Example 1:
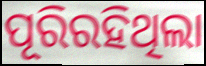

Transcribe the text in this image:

ପୂରିରହିଥିଲା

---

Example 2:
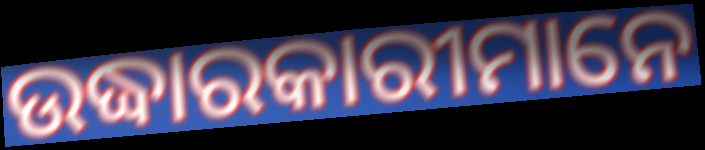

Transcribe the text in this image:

ଉଦ୍ଧାରକାରୀମାନେ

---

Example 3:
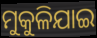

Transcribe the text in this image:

ମୁକୁଳିଯାଇ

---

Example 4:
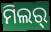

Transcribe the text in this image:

ମିଲର୍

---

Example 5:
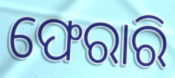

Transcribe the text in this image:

ଫେରାରି